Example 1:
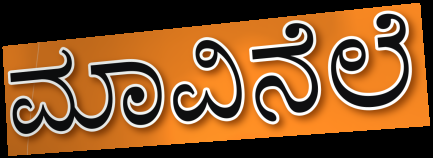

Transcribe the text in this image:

ಮಾವಿನೆಲೆ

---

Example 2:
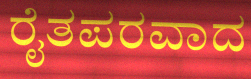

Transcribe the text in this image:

ರೈತಪರವಾದ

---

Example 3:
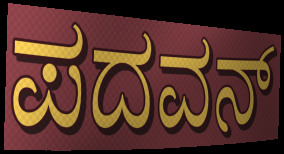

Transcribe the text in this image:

ಪದವನ್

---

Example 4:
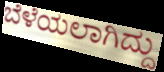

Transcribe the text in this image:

ಬೆಳೆಯಲಾಗಿದ್ದು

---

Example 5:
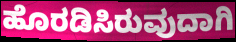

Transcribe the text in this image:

ಹೊರಡಿಸಿರುವುದಾಗಿ